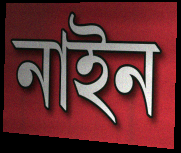
নাইন